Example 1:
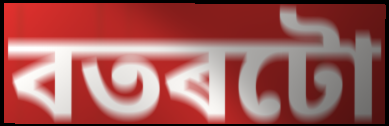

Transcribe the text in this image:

বতৰটো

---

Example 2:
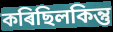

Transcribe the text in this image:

কৰিছিলকিন্তু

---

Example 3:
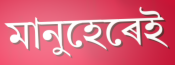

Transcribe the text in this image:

মানুহেৰেই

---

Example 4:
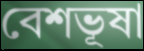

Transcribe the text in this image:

বেশভূষা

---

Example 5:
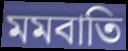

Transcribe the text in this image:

মমবাতি